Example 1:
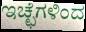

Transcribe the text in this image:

ಇಚ್ಛೆಗಳಿಂದ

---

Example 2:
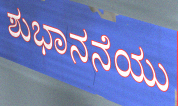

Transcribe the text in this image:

ಶುಭಾನನೆಯು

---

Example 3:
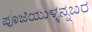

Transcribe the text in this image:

ಪೂಜೆಯುಳ್ಳನ್ನಬರ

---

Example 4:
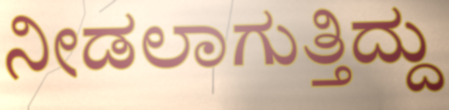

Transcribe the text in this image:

ನೀಡಲಾಗುತ್ತಿದ್ದು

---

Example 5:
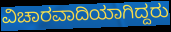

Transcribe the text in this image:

ವಿಚಾರವಾದಿಯಾಗಿದ್ದರು